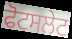
ਫੋਟਸਲੇਟ